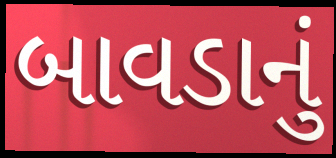
બાવડાનું